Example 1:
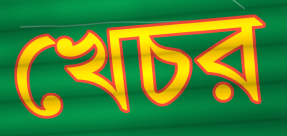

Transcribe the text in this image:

খেচর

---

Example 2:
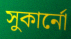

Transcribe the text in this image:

সুকার্নো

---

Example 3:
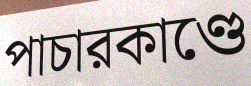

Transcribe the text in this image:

পাচারকাণ্ডে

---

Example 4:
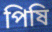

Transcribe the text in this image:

পিষি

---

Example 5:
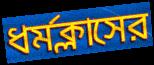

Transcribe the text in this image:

ধর্মক্লাসের